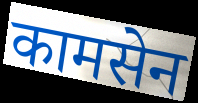
कामसेन